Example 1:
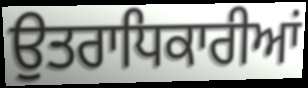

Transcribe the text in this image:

ਉਤਰਾਧਿਕਾਰੀਆਂ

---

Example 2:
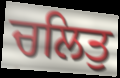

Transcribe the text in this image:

ਚਲਿਤੁ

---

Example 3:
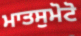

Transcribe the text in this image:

ਮਾਤਸੁਮੋਟੋ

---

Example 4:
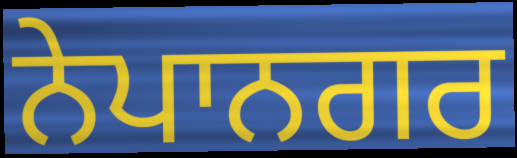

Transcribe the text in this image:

ਨੇਪਾਨਗਰ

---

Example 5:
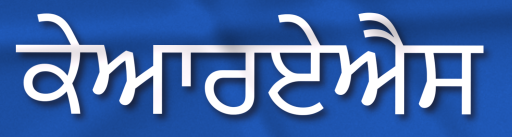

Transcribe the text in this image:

ਕੇਆਰਏਐਸ